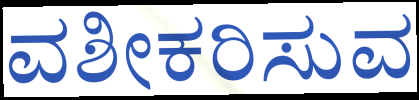
ವಶೀಕರಿಸುವ